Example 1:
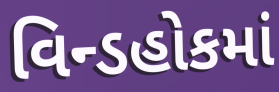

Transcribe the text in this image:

વિન્ડહોકમાં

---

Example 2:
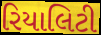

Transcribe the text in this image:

રિયાલિટી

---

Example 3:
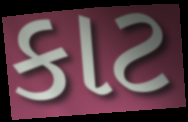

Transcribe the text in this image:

કાટ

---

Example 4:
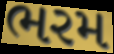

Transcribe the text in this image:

ભરમ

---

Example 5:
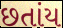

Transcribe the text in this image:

છતાંય